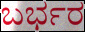
ಬರ್ಭರ